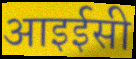
आइईसी